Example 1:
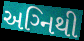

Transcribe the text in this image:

અગ્‍નિથી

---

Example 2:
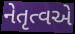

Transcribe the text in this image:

નેતૃત્વએ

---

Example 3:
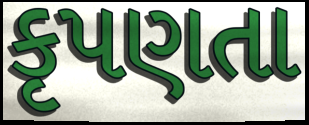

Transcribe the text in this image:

કૃપણતા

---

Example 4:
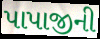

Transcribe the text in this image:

પાપાજીની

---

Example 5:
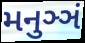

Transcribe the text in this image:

મનુઞ્ઞં